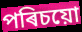
পৰিচয়ো